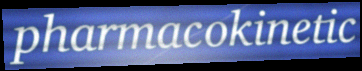
pharmacokinetic